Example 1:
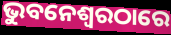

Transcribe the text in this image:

ଭୁବନେଶ୍ଵରଠାରେ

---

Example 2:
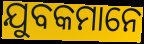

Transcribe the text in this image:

ଯୁବକମାନେ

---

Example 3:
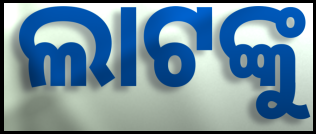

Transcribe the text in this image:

ଲାଟଙ୍କୁ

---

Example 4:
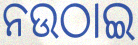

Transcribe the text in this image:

ନଉଠାଇ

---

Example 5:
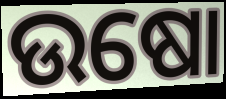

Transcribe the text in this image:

ଉଷୋ